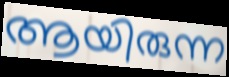
ആയിരുന്ന